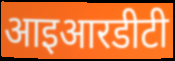
आइआरडीटी